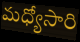
మధ్యోసారి